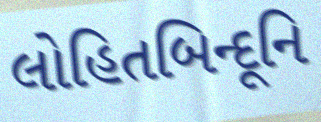
લોહિતબિન્દૂનિ